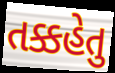
તક્કહેતુ